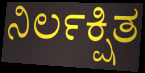
ನಿರ್ಲಕ್ಷಿತ